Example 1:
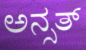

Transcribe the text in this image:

ಅನ್ಸತ್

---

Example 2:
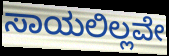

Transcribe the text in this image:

ಸಾಯಲಿಲ್ಲವೇ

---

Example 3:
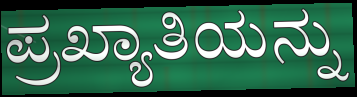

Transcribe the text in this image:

ಪ್ರಖ್ಯಾತಿಯನ್ನು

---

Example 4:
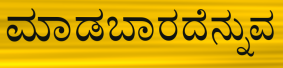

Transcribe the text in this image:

ಮಾಡಬಾರದೆನ್ನುವ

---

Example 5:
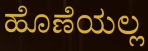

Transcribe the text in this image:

ಹೊಣೆಯಲ್ಲ